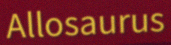
Allosaurus